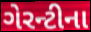
ગેરન્ટીના